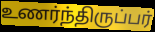
உணர்ந்திருப்பர்